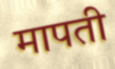
मापती